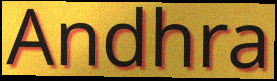
Andhra